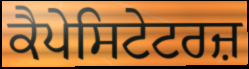
ਕੈਪੇਸਿਟੇਟਰਜ਼